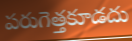
పరుగెత్తకూడదు